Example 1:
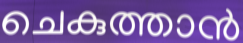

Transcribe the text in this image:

ചെകുത്താൻ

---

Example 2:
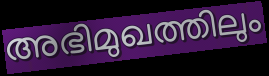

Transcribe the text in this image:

അഭിമുഖത്തിലും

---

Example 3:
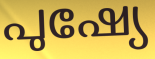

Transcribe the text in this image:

പുഷ്യേ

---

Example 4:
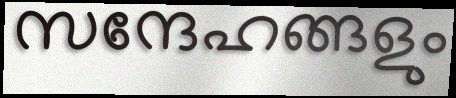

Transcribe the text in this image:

സന്ദേഹങ്ങളും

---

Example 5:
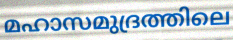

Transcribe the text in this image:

മഹാസമുദ്രത്തിലെ